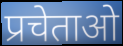
प्रचेताओ